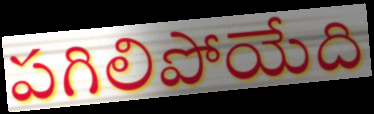
పగిలిపోయేది